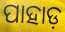
ପାହାଡ଼